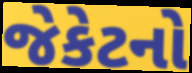
જેકેટનો